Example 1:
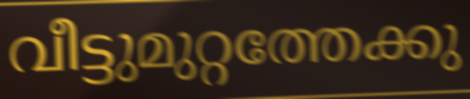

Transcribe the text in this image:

വീട്ടുമുറ്റത്തേക്കു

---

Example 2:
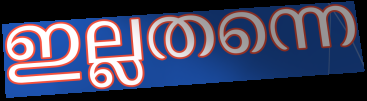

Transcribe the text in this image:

ഇല്ലതന്നെ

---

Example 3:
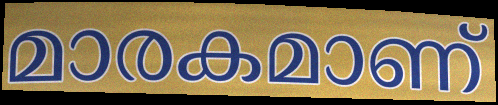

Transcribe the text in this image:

മാരകമാണ്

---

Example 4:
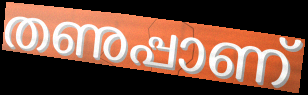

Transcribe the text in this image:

തണുപ്പാണ്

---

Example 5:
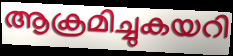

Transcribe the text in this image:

ആക്രമിച്ചുകയറി